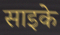
साइके